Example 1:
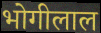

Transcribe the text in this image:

भोगीलाल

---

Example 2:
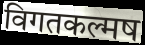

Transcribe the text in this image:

विगतकल्मष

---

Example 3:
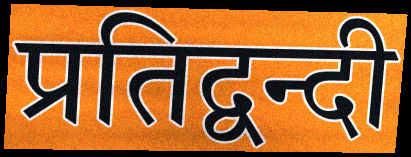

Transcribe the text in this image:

प्रतिद्वन्दी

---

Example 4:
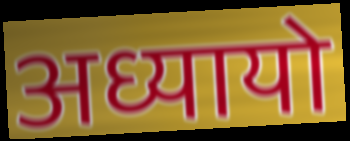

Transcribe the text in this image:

अध्यायो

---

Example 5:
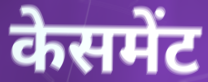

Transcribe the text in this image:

केसमेंट